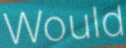
Would